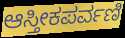
ಆಸ್ತೀಕಪರ್ವಣಿ